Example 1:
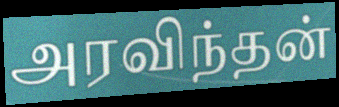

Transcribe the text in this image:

அரவிந்தன்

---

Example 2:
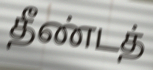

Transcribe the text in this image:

தீண்டத்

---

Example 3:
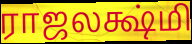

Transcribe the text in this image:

ராஜலக்ஷ்மி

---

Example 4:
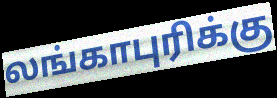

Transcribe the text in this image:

லங்காபுரிக்கு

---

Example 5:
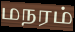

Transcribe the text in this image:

மநரம்